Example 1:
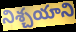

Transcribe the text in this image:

నిశ్చయాని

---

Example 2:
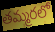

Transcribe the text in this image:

తమ్మరలో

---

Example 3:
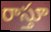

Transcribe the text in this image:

రాస్తూ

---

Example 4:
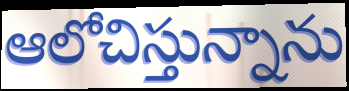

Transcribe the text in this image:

ఆలోచిస్తున్నాను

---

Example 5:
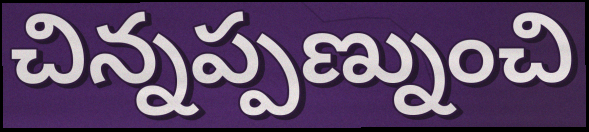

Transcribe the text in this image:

చిన్నప్పణ్నుంచి